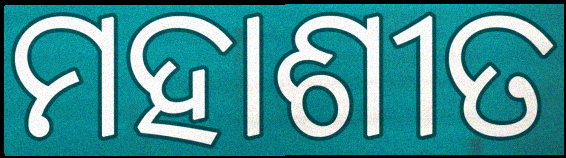
ମହାଶୀତ